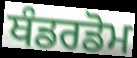
ਥੰਡਰਡੋਮ